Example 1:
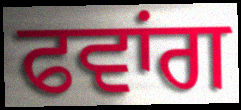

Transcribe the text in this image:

ਫਵਾਂਗ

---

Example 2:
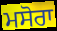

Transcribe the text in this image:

ਮਸੋਰਾ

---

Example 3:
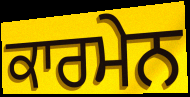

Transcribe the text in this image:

ਕਾਰਮੇਨ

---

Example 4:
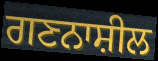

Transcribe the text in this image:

ਗਣਨਾਸ਼ੀਲ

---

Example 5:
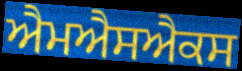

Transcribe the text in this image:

ਐਮਐਸਐਕਸ